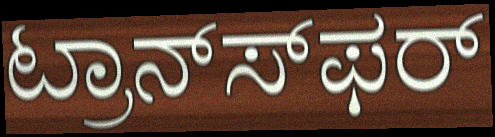
ಟ್ರಾನ್ಸ್‍ಫರ್